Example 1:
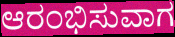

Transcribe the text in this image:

ಆರಂಭಿಸುವಾಗ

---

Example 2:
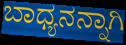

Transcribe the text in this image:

ಬಾಧ್ಯನನ್ನಾಗಿ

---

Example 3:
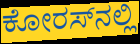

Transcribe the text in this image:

ಕೋರಸ್‌ನಲ್ಲಿ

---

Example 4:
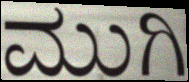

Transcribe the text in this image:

ಮುಗಿ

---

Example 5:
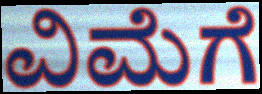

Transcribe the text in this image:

ವಿಮೆಗೆ